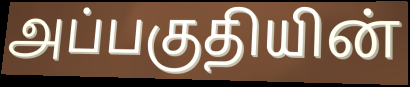
அப்பகுதியின்